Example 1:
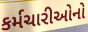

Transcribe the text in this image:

કર્મચારીઓનો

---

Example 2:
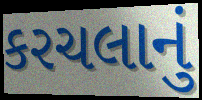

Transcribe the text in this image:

કરચલાનું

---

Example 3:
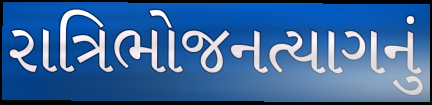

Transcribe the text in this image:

રાત્રિભોજનત્યાગનું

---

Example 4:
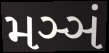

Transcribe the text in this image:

મઞ્ઞં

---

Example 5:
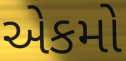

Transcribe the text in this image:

એકમો